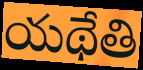
యథేతి